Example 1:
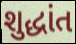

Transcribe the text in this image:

શુદ્ધાંત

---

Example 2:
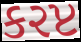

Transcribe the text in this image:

કરપ્ટ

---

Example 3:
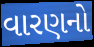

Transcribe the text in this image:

વારણનો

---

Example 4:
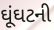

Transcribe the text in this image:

ઘૂંઘટની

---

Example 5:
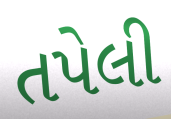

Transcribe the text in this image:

તપેલી